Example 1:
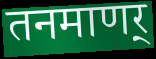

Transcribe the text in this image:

तनमाणर्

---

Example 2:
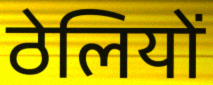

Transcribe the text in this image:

ठेलियों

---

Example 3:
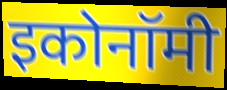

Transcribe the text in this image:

इकोनॉमी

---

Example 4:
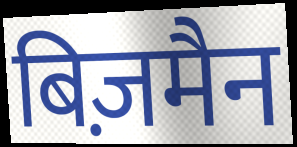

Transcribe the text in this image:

बिज़मैन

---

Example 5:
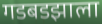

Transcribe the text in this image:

गडबडझाला